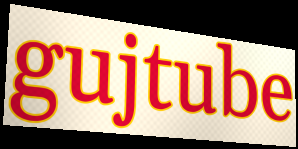
gujtube